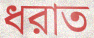
ধরাত